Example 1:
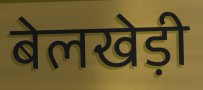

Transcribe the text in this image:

बेलखेड़ी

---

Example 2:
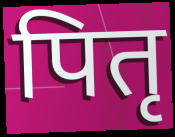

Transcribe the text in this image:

पितृ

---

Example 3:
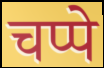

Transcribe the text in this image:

चप्पे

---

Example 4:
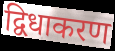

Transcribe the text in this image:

द्विधाकरण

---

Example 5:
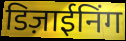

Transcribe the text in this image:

डिज़ाईनिंग